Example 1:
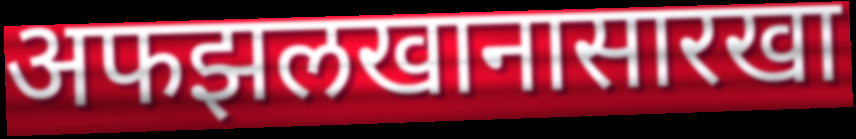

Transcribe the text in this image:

अफझलखानासारखा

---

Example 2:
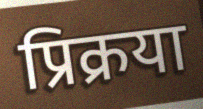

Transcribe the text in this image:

प्रिक्रया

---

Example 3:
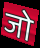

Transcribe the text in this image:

जो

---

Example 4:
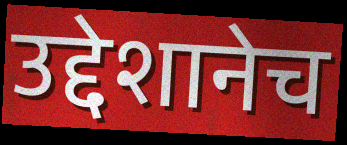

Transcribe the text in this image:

उद्देशानेच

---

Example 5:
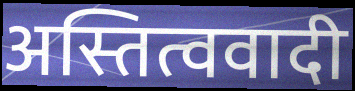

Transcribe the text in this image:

अस्तित्ववादी